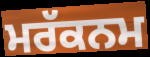
ਮਰੱਕਨਮ